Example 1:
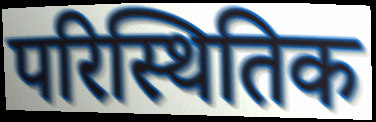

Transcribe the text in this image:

परिस्थितिक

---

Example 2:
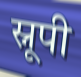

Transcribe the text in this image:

स्नूपी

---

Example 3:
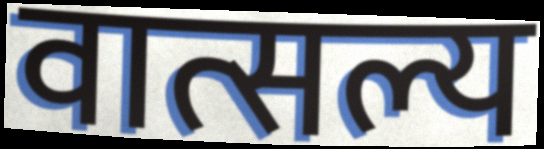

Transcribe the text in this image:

वात्सल्य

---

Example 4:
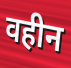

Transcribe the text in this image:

वहीन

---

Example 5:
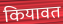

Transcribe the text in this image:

कियावत